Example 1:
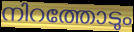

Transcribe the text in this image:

നിറത്തോടും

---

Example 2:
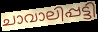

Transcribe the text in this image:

ചാവാലിപ്പട്ടി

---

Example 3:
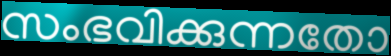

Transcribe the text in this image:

സംഭവിക്കുന്നതോ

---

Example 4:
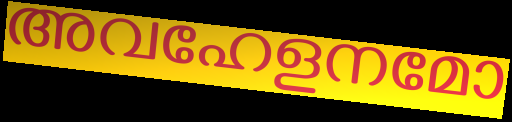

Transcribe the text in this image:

അവഹേളനമോ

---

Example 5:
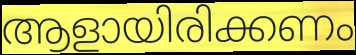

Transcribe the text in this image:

ആളായിരിക്കണം